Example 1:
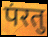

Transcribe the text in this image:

पंरतु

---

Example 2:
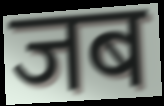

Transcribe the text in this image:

जब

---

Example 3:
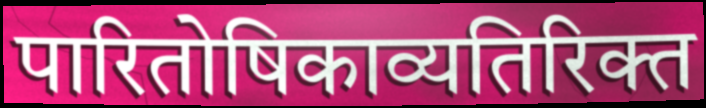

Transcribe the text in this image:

पारितोषिकाव्यतिरिक्त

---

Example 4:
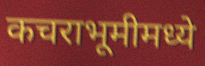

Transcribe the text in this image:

कचराभूमीमध्ये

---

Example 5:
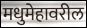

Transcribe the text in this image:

मधुमेहावरील